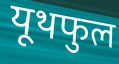
यूथफुल